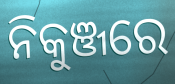
ନିକୁଞ୍ଜରେ